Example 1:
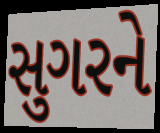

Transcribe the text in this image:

સુગરને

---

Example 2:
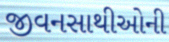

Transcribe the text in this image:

જીવનસાથીઓની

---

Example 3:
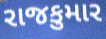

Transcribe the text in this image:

રાજકુમાર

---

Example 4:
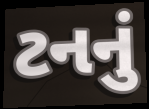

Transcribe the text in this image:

ટનનું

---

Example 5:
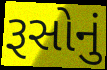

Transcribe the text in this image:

રૂસોનું